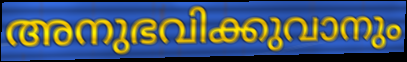
അനുഭവിക്കുവാനും